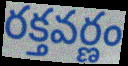
రక్తవర్ణం